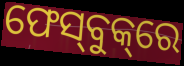
ଫେସ୍‌ବୁକ୍‌ରେ